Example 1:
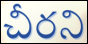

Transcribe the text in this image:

చీరని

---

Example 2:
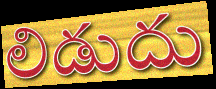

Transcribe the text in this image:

లిడుదు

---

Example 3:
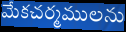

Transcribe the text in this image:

మేకచర్మములను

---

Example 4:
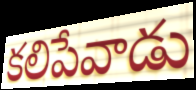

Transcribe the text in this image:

కలిపేవాడు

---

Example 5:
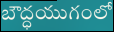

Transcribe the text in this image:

బౌద్ధయుగంలో